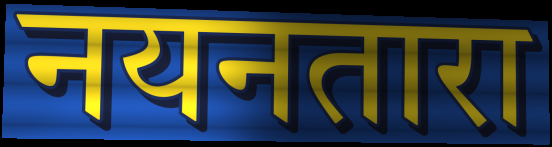
नयनतारा